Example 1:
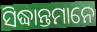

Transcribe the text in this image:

ସିଦ୍ଧାନ୍ତମାନେ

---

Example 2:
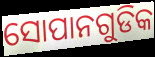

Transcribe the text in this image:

ସୋପାନଗୁଡିକ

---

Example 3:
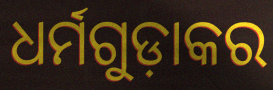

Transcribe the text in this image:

ଧର୍ମଗୁଡ଼ାକର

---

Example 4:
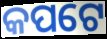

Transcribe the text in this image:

କପଟେ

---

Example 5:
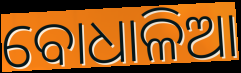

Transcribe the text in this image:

ବୋଧାଳିଆ